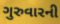
ગુરુવારની